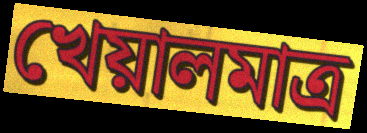
খেয়ালমাত্র